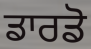
ਡਾਰਡੋ